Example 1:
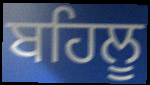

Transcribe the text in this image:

ਬਹਿਲੂ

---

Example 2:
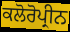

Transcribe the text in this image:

ਕਲੋਰੋਪ੍ਰੀਨ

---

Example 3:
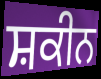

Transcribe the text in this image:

ਸ਼ਕੀਨ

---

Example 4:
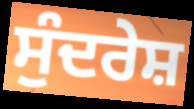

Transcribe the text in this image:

ਸੁੰਦਰੇਸ਼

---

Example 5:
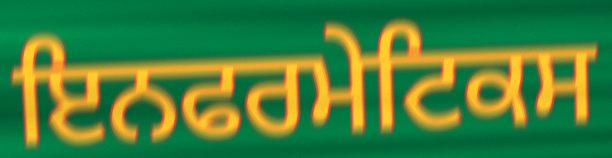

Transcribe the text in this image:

ਇਨਫਰਮੇਟਿਕਸ